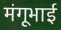
मंगूभाई